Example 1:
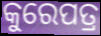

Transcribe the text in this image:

କୁରେପତ୍ର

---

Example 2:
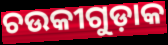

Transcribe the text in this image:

ଚଉକୀଗୁଡ଼ାକ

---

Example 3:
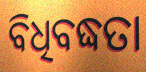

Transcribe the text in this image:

ବିଧିବଦ୍ଧତା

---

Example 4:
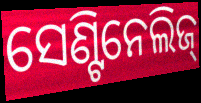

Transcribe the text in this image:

ସେଣ୍ଟିନେଲିଜ୍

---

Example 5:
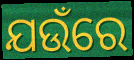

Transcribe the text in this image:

ଯଉଁରେ